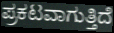
ಪ್ರಕಟವಾಗುತ್ತಿದೆ